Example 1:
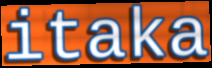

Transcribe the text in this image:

itaka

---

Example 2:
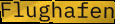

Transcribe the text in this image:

Flughafen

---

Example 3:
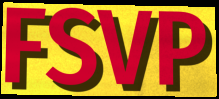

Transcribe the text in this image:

FSVP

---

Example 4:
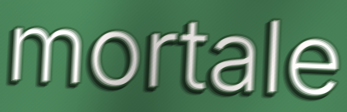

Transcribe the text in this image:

mortale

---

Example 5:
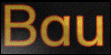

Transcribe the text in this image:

Bau